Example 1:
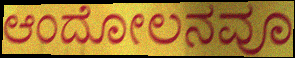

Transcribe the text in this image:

ಆಂದೋಲನವೂ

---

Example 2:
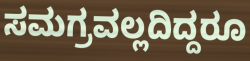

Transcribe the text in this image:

ಸಮಗ್ರವಲ್ಲದಿದ್ದರೂ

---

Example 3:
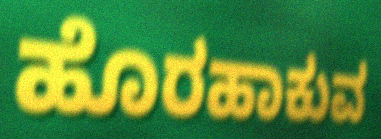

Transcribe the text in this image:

ಹೊರಹಾಕುವ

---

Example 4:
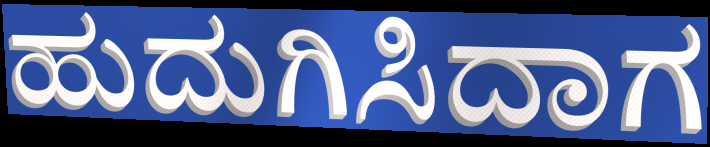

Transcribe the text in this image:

ಹುದುಗಿಸಿದಾಗ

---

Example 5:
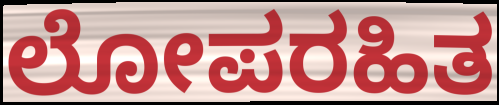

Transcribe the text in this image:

ಲೋಪರಹಿತ